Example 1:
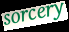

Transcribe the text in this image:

sorcery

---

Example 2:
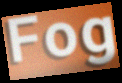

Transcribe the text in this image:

Fog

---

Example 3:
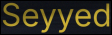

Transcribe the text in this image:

Seyyed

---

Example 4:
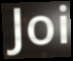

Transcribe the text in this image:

Joi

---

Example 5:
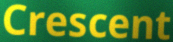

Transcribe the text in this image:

Crescent